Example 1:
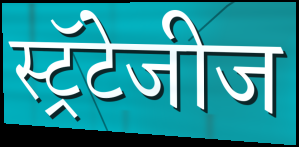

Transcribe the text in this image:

स्ट्रॅटेजीज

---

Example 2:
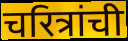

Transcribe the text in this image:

चरित्रांची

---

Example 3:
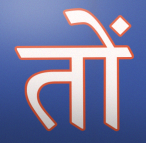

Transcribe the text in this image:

तों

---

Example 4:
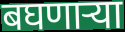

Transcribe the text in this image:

बघणाऱ्या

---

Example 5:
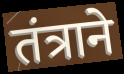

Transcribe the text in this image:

तंत्राने